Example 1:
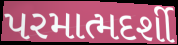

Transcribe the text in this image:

પરમાત્મદર્શી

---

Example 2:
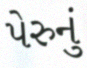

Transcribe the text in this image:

પેરુનું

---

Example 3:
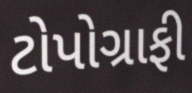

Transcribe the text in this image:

ટોપોગ્રાફી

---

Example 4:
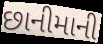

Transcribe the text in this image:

છાનીમાની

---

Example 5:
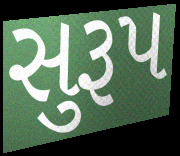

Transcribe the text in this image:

સુરૂપ